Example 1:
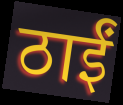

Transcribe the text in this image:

ठाईं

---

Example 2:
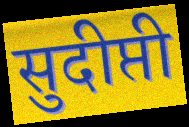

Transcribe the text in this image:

सुदीप्ती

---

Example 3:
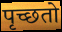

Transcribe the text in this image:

पृच्छतो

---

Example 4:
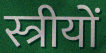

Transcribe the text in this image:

स्त्रीयों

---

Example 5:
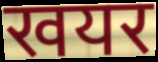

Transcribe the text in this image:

खयर